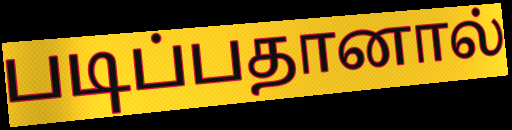
படிப்பதானால்